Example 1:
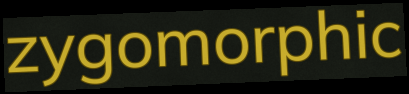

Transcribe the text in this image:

zygomorphic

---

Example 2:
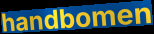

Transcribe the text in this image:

handbomen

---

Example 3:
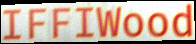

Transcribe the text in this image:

IFFIWood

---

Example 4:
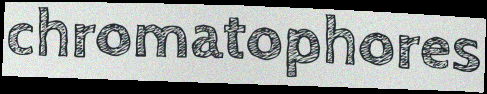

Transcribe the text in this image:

chromatophores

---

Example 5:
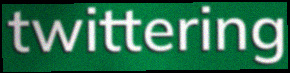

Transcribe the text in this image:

twittering